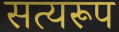
सत्यरूप